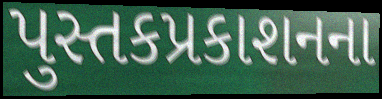
પુસ્તકપ્રકાશનના